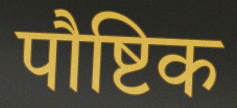
पौष्टिक